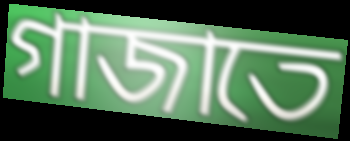
গাজাতে